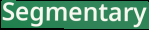
Segmentary